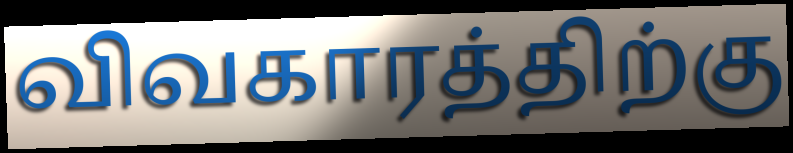
விவகாரத்திற்கு